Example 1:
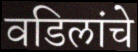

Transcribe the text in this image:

वडिलांचे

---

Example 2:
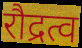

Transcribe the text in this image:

रौद्रत्व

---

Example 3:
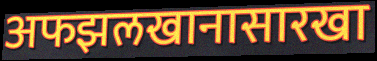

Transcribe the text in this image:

अफझलखानासारखा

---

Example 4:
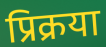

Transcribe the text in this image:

प्रिक्रया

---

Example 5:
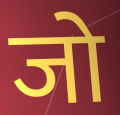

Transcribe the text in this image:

जो